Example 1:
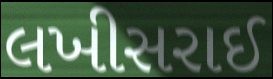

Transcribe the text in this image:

લખીસરાઈ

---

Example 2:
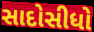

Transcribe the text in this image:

સાદોસીધો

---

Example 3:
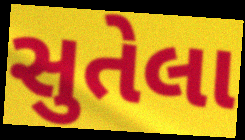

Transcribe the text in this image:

સુતેલા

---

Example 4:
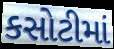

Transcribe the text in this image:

કસોટીમાં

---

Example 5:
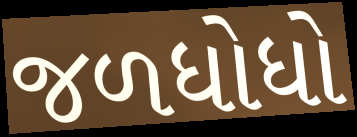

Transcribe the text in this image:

જળધોધો